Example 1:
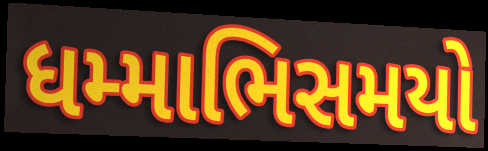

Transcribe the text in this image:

ધમ્માભિસમયો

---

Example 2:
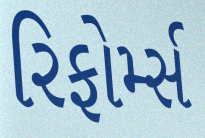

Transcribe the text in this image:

રિફોર્મ્સ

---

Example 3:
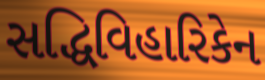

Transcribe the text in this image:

સદ્ધિવિહારિકેન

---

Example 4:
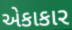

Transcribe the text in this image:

એકાકાર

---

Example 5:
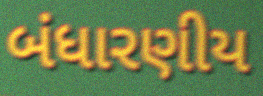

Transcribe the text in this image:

બંધારણીય